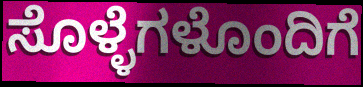
ಸೊಳ್ಳೆಗಳೊಂದಿಗೆ